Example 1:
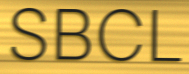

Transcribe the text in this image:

SBCL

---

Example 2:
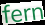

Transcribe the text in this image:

fern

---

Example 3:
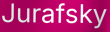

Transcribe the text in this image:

Jurafsky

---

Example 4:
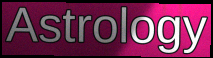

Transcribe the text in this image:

Astrology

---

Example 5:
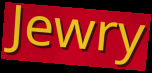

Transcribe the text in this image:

Jewry